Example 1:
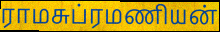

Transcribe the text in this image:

ராமசுப்ரமணியன்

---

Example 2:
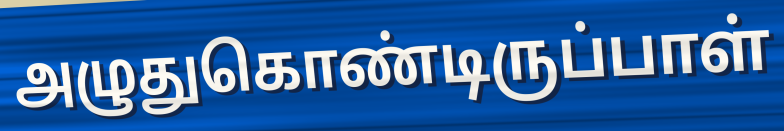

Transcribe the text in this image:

அழுதுகொண்டிருப்பாள்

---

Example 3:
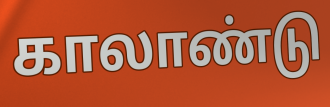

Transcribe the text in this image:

காலாண்டு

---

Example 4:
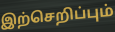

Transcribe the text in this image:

இற்செறிப்பும்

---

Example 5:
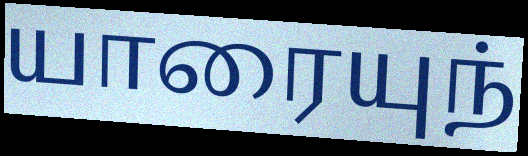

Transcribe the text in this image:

யாரையுந்